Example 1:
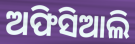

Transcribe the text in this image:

ଅଫିସିଆଲି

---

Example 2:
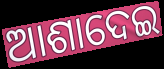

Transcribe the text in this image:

ଆଶାଦେଇ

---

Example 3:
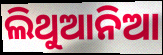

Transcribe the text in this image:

ଲିଥୁଆନିଆ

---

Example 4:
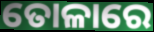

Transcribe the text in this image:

ତୋଳାରେ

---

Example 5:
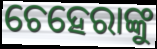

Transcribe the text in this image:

ଚେହେରାଙ୍କୁ